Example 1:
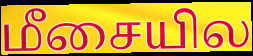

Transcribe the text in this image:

மீசையில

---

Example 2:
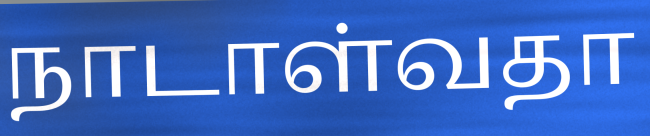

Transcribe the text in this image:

நாடாள்வதா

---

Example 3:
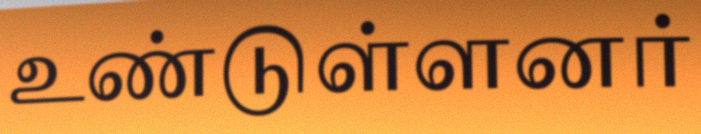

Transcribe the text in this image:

உண்டுள்ளனர்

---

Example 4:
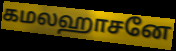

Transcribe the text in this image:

கமலஹாசனே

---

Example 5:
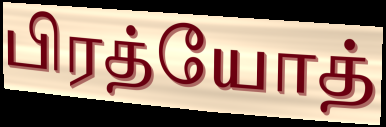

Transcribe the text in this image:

பிரத்யோத்